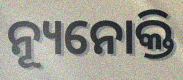
ନ୍ୟୂନୋକ୍ତି